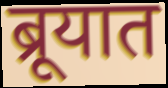
ब्रूयात